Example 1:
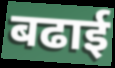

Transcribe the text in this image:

बढाई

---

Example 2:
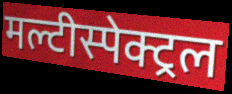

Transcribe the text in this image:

मल्टीस्पेक्ट्रल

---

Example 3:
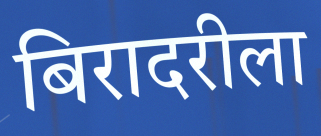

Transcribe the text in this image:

बिरादरीला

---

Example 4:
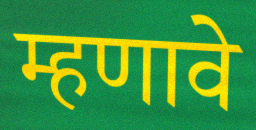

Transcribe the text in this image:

म्हणावे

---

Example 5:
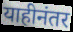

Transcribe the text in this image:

याहीनंतर